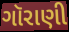
ગૉરાણી